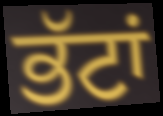
ਭੱਟਾਂ